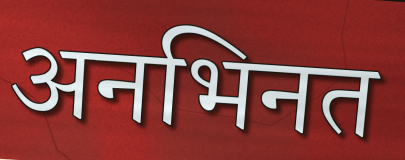
अनभिनत